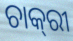
ଚାକ୍‌ରୀ